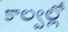
కాల్వల్లో